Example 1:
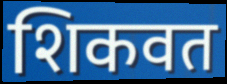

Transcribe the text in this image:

शिकवत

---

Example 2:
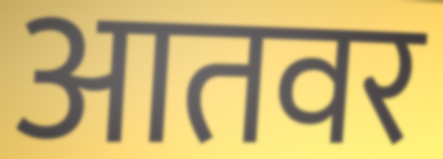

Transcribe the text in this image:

आतवर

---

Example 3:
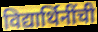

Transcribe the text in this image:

विद्यार्थिनींची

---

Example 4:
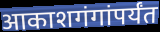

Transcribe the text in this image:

आकाशगंगांपर्यंत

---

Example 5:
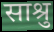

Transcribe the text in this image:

साश्रु